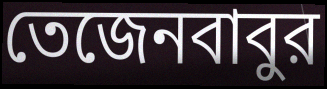
তেজেনবাবুর